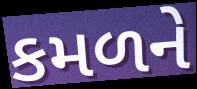
કમળને